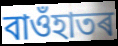
বাওঁহাতৰ